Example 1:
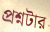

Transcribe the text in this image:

প্রশ্নটার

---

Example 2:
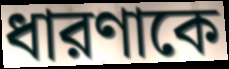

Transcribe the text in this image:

ধারণাকে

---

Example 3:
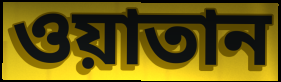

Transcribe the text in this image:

ওয়াতান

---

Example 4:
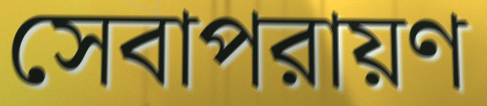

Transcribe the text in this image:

সেবাপরায়ণ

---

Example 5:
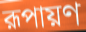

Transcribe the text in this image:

রূপায়ণ